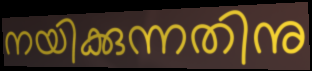
നയിക്കുന്നതിനു